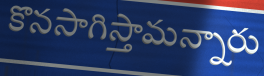
కొనసాగిస్తామన్నారు